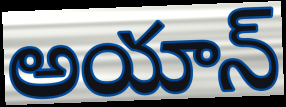
అయాన్